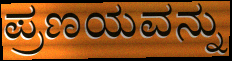
ಪ್ರಣಯವನ್ನು